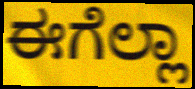
ಈಗೆಲ್ಲಾ